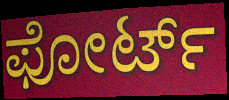
ಫೋರ್ಟ್